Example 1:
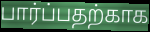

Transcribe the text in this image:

பார்ப்பதற்காக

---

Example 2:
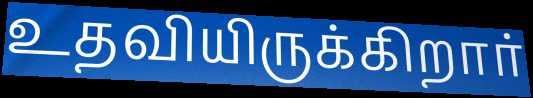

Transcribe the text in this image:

உதவியிருக்கிறார்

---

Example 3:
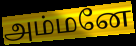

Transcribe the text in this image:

அம்மனே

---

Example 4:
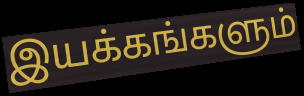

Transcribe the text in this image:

இயக்கங்களும்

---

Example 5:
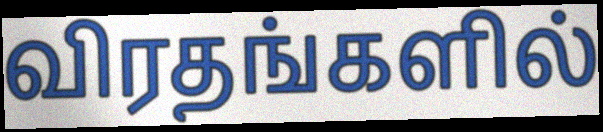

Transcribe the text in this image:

விரதங்களில்